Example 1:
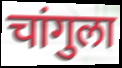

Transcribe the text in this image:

चांगुला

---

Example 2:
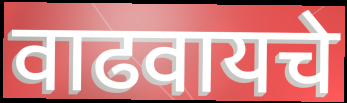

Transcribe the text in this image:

वाढवायचे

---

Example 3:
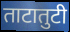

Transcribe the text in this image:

ताटातुटी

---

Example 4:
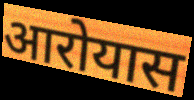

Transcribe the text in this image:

आरोयास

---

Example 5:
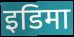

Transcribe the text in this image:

इडिमा